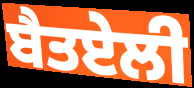
ਬੈਤਏਲੀ